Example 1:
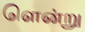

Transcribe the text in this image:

ளென்று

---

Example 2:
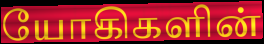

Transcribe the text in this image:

யோகிகளின்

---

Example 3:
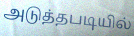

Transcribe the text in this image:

அடுத்தபடியில்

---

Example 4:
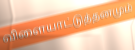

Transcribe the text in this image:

விளையாட்டுத்தனமும்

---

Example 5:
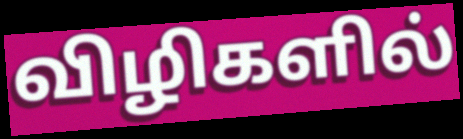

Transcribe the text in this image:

விழிகளில்